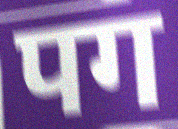
पग